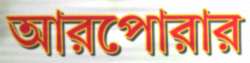
আরপোরার